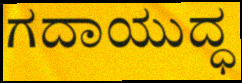
ಗದಾಯುದ್ಧ